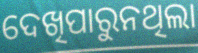
ଦେଖିପାରୁନଥିଲା